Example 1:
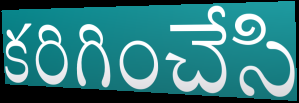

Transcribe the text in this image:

కరిగించేసి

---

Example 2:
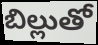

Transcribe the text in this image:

బిల్లుతో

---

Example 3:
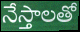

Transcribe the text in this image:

నేస్తాలతో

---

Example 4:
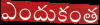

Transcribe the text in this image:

ఎందుకంత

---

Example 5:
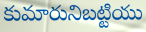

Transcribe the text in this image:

కుమారునిబట్టియు